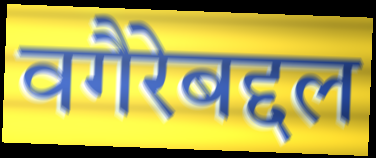
वगैरेबद्दल